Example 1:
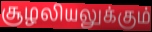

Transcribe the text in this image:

சூழலியலுக்கும்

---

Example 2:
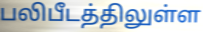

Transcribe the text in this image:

பலிபீடத்திலுள்ள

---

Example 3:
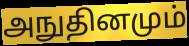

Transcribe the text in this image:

அநுதினமும்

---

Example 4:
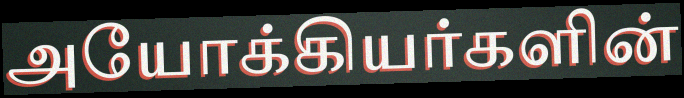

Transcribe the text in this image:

அயோக்கியர்களின்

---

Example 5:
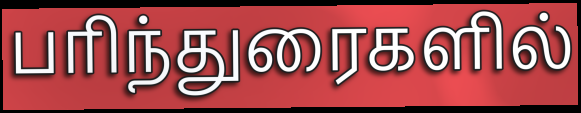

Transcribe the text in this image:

பரிந்துரைகளில்